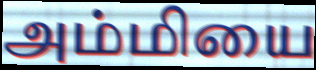
அம்மியை